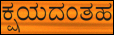
ಕ್ಷಯದಂತಹ